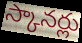
స్కానర్లు